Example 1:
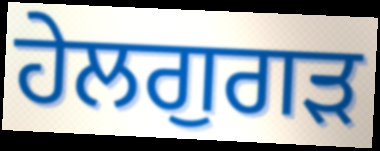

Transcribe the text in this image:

ਹੇਲਗੁਗੜ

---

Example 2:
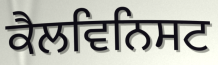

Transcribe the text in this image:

ਕੈਲਵਿਨਿਸਟ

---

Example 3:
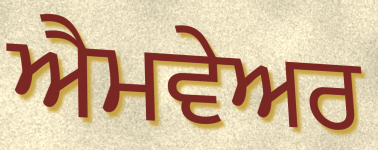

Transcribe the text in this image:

ਐਮਵੇਅਰ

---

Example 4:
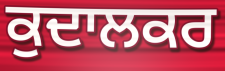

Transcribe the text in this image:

ਕੁਦਾਲਕਰ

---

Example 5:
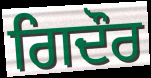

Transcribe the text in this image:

ਗਿਦੌਰ